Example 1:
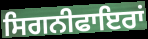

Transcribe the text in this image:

ਸਿਗਨੀਫਾਇਰਾਂ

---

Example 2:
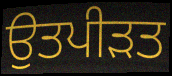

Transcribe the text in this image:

ਉਤਪੀੜਤ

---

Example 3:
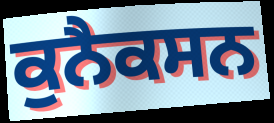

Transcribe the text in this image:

ਕੁਨੈਕਸਨ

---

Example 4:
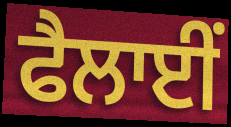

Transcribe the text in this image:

ਫੈਲਾਈਂ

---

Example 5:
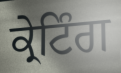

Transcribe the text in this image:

ਕ੍ਰੇਟਿੰਗ